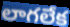
లాగలేక